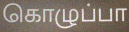
கொழுப்பா